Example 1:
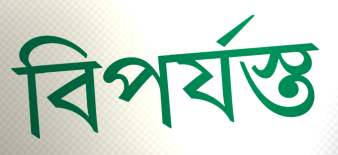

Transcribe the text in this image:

বিপৰ্যস্ত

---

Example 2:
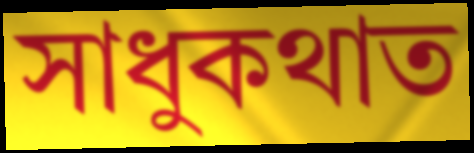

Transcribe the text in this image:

সাধুকথাত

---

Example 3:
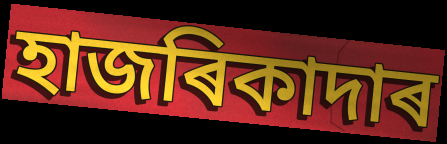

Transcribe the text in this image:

হাজৰিকাদাৰ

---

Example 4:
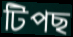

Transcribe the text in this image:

টিপছ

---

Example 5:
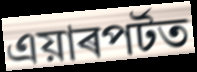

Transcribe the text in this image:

এয়াৰপৰ্টত